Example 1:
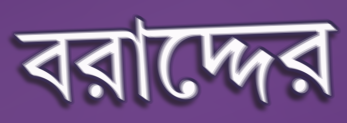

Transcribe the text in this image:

বরাদ্দের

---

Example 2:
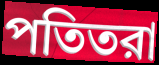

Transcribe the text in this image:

পতিতরা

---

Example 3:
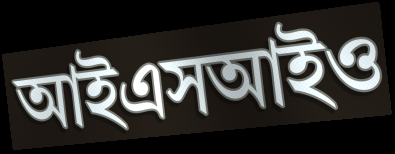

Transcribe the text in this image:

আইএসআইও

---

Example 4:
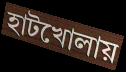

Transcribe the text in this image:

হাটখোলায়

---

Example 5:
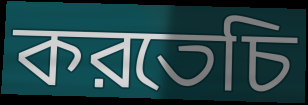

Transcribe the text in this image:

করতেচি